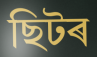
ছিটৰ